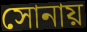
সোনায়